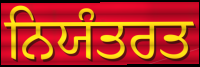
ਨਿਯੰਤਰਤ